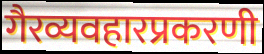
गैरव्यवहारप्रकरणी